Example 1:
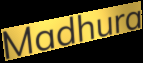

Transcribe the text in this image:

Madhura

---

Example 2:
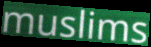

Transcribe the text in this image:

muslims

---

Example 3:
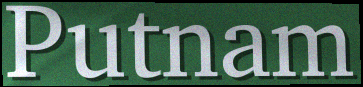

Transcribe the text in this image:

Putnam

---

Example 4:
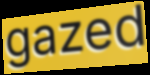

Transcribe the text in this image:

gazed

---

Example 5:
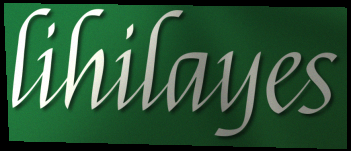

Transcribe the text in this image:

lihilayes